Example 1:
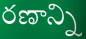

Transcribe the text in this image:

రణాన్ని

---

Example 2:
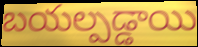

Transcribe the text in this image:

బయల్పడ్డాయి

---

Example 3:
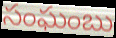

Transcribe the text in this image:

సంఘంబు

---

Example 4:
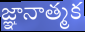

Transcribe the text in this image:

జ్ఞానాత్మక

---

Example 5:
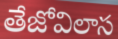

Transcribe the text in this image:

తేజోవిలాస